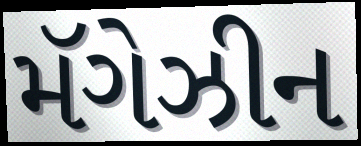
મૅગેઝીન